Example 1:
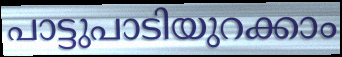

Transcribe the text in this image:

പാട്ടുപാടിയുറക്കാം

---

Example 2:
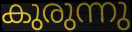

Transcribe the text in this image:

കുരുന്നു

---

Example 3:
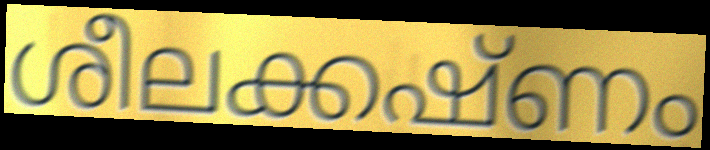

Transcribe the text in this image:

ശീലക്കഷ്ണം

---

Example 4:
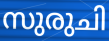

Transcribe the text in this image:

സുരുചി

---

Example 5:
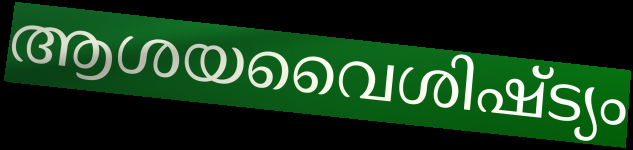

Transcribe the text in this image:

ആശയവൈശിഷ്ട്യം